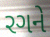
રગને